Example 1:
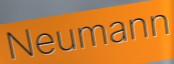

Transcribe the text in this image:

Neumann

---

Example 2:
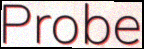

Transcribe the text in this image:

Probe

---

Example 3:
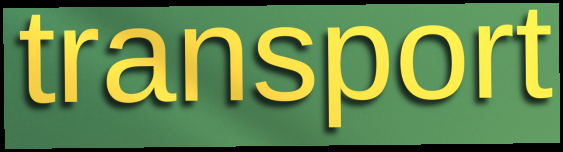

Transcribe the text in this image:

transport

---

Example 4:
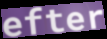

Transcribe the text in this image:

efter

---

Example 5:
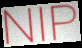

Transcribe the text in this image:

NIP